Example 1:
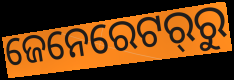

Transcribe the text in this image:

ଜେନେରେଟର୍‌ରୁ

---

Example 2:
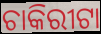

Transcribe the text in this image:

ଚାକିରୀଟା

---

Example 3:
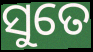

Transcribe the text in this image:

ସୁତେ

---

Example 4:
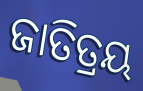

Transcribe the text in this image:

ଜାତିତ୍ରୟ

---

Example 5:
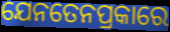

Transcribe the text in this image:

ଯେନତେନପ୍ରକାରେ